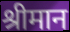
श्रीमान